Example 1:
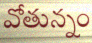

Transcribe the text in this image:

వోతున్నం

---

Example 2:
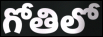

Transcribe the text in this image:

గోతిలో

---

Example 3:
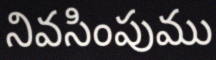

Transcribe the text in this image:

నివసింపుము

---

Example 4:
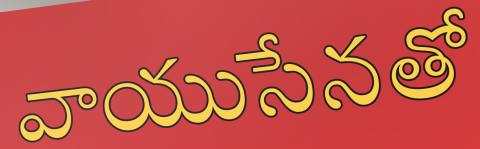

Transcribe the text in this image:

వాయుసేనతో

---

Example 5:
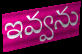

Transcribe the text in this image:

ఇవ్వను